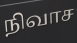
நிவாச